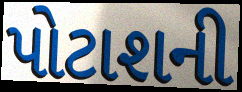
પોટાશની